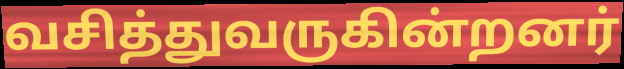
வசித்துவருகின்றனர்